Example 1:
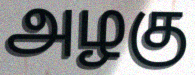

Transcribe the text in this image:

அழகு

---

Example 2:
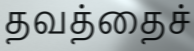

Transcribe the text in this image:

தவத்தைச்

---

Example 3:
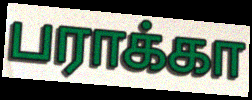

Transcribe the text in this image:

பராக்கா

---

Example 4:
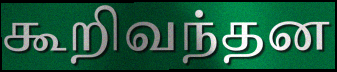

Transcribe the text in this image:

கூறிவந்தன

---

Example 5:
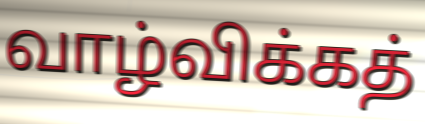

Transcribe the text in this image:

வாழ்விக்கத்